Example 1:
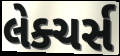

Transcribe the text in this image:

લેક્ચર્સ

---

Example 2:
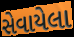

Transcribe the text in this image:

સેવાયેલા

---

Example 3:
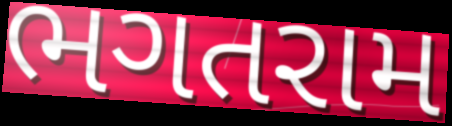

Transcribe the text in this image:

ભગતરામ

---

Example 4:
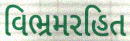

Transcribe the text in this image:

વિભ્રમરહિત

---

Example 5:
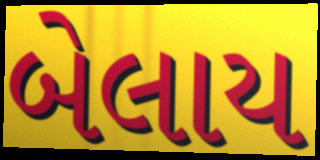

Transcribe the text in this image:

બેલાય